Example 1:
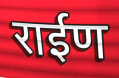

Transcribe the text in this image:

राईण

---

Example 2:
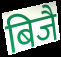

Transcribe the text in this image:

बिजै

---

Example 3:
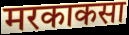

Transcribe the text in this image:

मरकाकसा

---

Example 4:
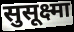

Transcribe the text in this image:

सुसूक्ष्मा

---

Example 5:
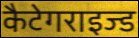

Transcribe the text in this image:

कैटेगराइज्ड